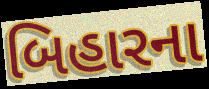
બિહારના